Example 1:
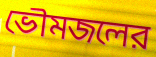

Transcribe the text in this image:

ভৌমজলের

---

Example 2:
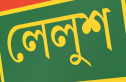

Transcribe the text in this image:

লেলুশ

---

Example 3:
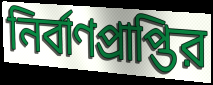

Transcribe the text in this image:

নির্বাণপ্রাপ্তির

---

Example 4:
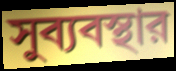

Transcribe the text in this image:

সুব্যবস্থার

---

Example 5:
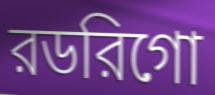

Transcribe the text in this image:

রডরিগো